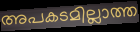
അപകടമില്ലാത്ത